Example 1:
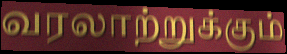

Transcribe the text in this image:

வரலாற்றுக்கும்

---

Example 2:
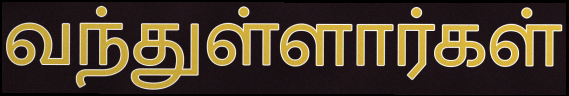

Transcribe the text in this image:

வந்துள்ளார்கள்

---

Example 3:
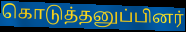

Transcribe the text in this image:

கொடுத்தனுப்பினர்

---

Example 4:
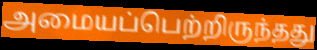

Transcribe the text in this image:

அமையப்பெற்றிருந்தது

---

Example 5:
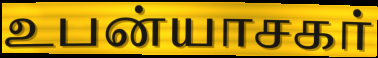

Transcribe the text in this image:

உபன்யாசகர்